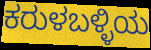
ಕರುಳಬಳ್ಳಿಯ